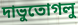
দাভুতোগলু